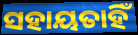
ସହାୟତାହିଁ